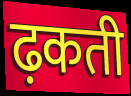
ढ़कती